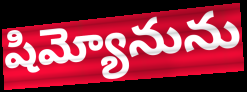
షిమ్యోనును